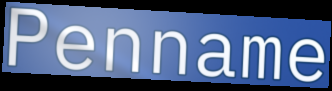
Penname